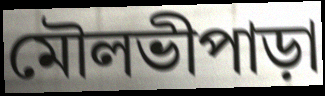
মৌলভীপাড়া